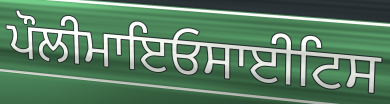
ਪੌਲੀਮਾਇਓਸਾਈਟਿਸ